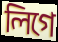
লিগে